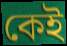
কেই